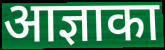
आज्ञाका